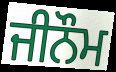
ਜੀਨੌਮ